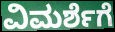
ವಿಮರ್ಶೆಗೆ